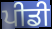
ਪੀਡੀ